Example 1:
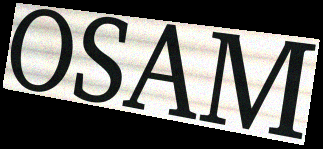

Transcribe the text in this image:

OSAM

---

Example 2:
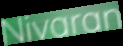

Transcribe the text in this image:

Nivaran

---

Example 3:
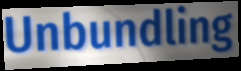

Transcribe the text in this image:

Unbundling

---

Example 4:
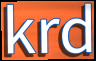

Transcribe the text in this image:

krd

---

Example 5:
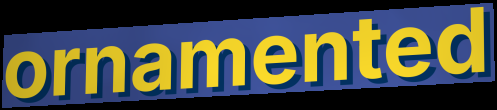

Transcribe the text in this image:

ornamented